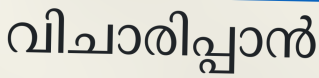
വിചാരിപ്പാൻ